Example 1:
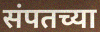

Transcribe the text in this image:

संपतच्या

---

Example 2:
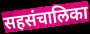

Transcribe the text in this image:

सहसंचालिका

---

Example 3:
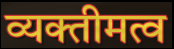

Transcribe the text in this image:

व्यक्तीमत्व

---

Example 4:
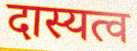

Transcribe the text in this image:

दास्यत्व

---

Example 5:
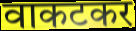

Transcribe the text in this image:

वाकटकर